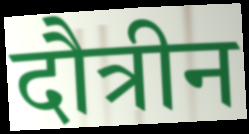
दौत्रीन